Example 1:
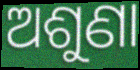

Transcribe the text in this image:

ଅଶୁଣା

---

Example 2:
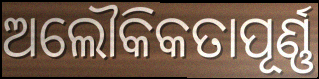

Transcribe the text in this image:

ଅଲୌକିକତାପୂର୍ଣ୍ଣ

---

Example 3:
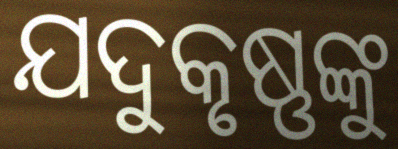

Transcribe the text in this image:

ଯଦୁକୃଷ୍ଣଙ୍କୁ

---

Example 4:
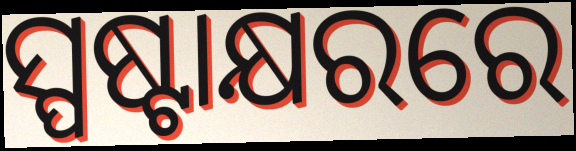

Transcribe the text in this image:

ସ୍ପଷ୍ଟାକ୍ଷରରେ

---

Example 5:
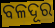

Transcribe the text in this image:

ବଳଦୂର